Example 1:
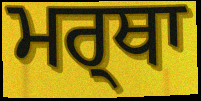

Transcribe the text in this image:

ਮਰ੍ਥਾ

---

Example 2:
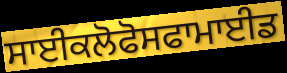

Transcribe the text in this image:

ਸਾਈਕਲੋਫੋਸਫਾਮਾਈਡ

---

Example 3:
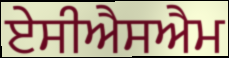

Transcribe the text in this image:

ਏਸੀਐਸਐਮ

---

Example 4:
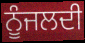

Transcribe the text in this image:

ਨੂੰਜਲਦੀ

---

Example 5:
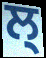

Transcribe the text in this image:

ਲ੍